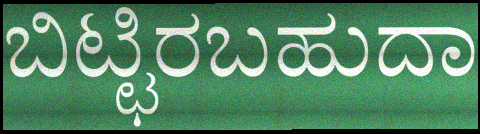
ಬಿಟ್ಟಿರಬಹುದಾ